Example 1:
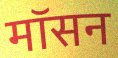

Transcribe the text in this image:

मॉसन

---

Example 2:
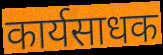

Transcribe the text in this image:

कार्यसाधक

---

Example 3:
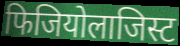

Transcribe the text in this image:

फिजियोलाजिस्ट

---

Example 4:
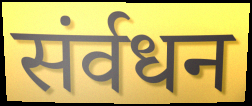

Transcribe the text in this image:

संर्वधन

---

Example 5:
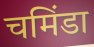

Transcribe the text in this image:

चमिंडा